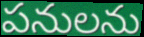
పనులను